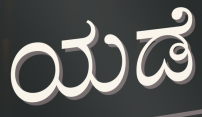
ಯಡೆ